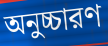
অনুচ্চারণ